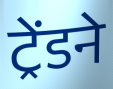
ट्रेंडने